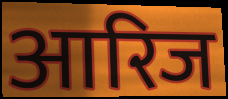
आरिज